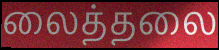
லைத்தலை